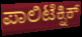
ಪಾಲಿಟೆಕ್ನಿಕ್